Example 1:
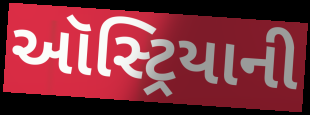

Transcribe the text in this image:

ઑસ્ટ્રિયાની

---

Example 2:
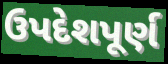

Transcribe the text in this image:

ઉપદેશપૂર્ણ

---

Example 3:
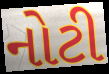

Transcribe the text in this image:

નોટી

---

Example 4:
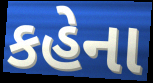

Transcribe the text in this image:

કહેના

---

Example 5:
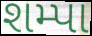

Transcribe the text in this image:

શમ્પા